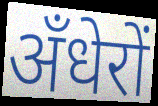
अँधेरों